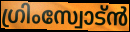
ഗ്രിംസ്വോട്ൻ